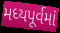
મધ્યપૂર્વમાં